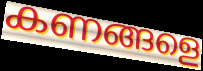
കണങ്ങളെ